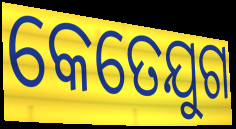
କେତେଯୁଗ